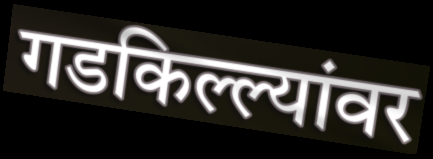
गडकिल्ल्यांवर